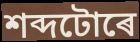
শব্দটোৰে